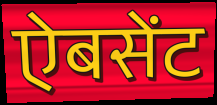
ऐबसेंट